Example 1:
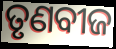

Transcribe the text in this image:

ତୃଣବୀଜ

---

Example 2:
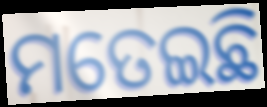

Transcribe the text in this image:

ମତେଇଛି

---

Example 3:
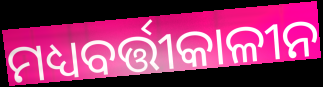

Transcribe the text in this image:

ମଧ୍ୟବର୍ତ୍ତୀକାଳୀନ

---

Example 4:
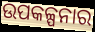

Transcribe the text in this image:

ଉପକଳ୍ପନାର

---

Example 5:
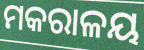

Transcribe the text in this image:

ମକରାଳୟ